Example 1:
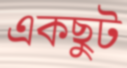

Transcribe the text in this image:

একছুট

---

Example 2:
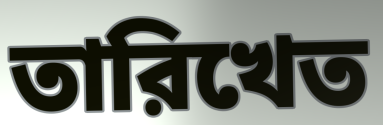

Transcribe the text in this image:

তারিখেত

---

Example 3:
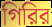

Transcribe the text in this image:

গিরির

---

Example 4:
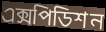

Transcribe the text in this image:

এক্সপিডিশন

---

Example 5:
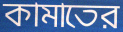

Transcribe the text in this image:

কামাতের